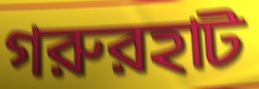
গরুরহাট